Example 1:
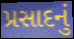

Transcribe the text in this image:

પ્રસાદનું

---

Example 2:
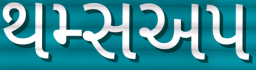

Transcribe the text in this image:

થમ્સઅપ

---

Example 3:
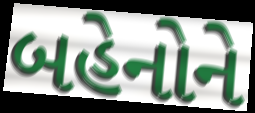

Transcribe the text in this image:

બહેનોને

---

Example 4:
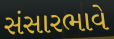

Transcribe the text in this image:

સંસારભાવે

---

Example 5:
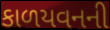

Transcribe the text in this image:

કાળયવનની